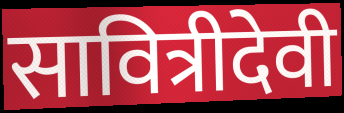
सावित्रीदेवी